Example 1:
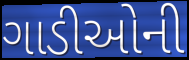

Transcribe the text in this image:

ગાડીઓની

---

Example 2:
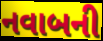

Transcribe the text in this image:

નવાબની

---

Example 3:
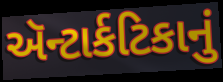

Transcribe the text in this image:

ઍન્ટાર્કટિકાનું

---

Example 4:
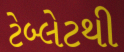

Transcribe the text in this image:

ટેબ્લેટથી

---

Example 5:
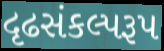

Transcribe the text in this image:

દૃઢસંકલ્પરૂપ